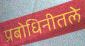
प्रबोधिनीतले